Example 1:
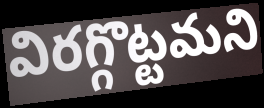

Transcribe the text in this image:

విరగ్గొట్టమని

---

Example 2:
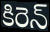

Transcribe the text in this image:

కిరెన్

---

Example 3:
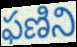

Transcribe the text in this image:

ఫణిని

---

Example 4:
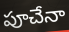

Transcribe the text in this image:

పూచేనా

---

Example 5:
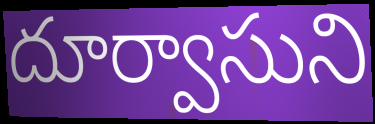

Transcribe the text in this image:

దూర్వాసుని